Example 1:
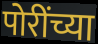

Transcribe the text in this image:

पोरींच्या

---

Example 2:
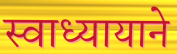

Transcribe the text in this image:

स्वाध्यायाने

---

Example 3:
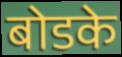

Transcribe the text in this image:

बोडके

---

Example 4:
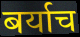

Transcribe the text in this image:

बर्याच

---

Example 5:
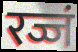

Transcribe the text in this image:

रज्जं